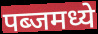
पब्जमध्ये